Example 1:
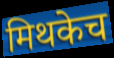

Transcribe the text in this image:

मिथकेच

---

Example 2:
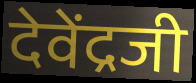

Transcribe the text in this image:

देवेंद्रजी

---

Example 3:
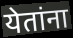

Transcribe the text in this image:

येतांना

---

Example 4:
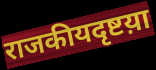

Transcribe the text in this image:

राजकीयदृष्टय़ा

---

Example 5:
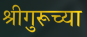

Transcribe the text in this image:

श्रीगुरूच्या